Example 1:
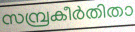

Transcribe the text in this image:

സമ്പ്രകീർതിതാ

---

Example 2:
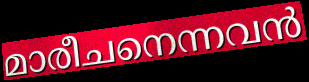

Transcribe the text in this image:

മാരീചനെന്നവൻ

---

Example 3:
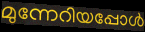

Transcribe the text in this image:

മുന്നേറിയപ്പോൾ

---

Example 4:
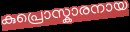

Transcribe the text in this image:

കുപ്രൊസ്കാരനായ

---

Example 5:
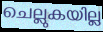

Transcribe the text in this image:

ചെല്ലുകയില്ല